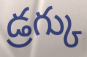
డ్రగ్కు